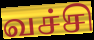
வச்சி